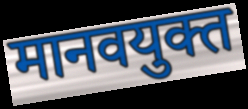
मानवयुक्त